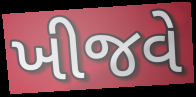
ખીજવે